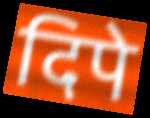
दिपे